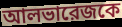
আলভারেজকে